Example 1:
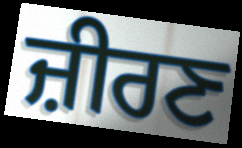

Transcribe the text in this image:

ਜ਼ੀਰਣ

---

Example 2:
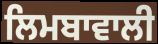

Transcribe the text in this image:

ਲਿਮਬਾਵਾਲੀ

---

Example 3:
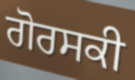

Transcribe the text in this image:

ਗੋਰਸਕੀ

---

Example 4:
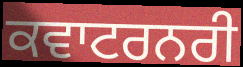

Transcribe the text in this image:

ਕਵਾਟਰਨਰੀ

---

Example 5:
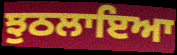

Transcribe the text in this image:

ਝੁਠਲਾਇਆ